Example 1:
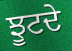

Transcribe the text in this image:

ਝੂਟਦੇ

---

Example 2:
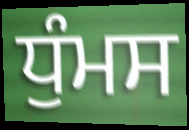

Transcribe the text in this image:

ਧੁੰਮਸ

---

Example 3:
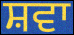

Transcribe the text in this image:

ਸ਼ਵਾ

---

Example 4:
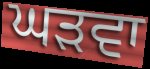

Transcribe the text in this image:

ਘੜਵਾ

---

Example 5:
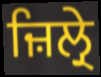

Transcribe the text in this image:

ਜ਼ਿਲ੍ਰੇ